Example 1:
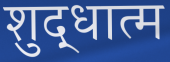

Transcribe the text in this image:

शुद्धात्म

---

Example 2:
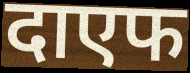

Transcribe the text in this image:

दाएफ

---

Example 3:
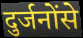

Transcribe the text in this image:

दुर्जनोंसे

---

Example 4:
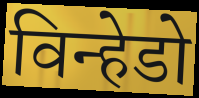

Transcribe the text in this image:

विन्हेडो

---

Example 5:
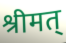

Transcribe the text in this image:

श्रीमत्